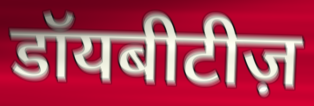
डॉयबीटीज़